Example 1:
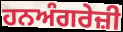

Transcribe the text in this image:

ਹਨਅੰਗਰੇਜ਼ੀ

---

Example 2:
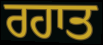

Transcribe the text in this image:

ਰਹਾਤ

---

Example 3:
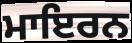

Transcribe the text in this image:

ਮਾਇਰਨ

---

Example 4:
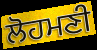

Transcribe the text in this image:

ਲੋਹਮਣੀ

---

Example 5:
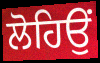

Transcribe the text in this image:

ਲੋਹਿਉਂ